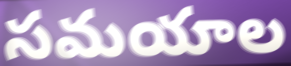
సమయాల